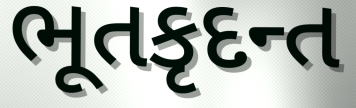
ભૂતકૃદન્ત